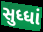
સુધ્ધાં